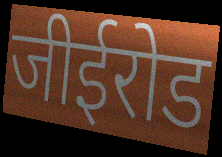
जीईरोड